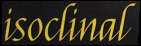
isoclinal